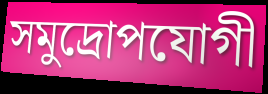
সমুদ্রোপযোগী